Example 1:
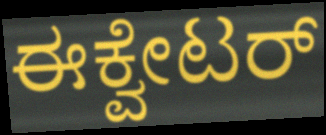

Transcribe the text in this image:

ಈಕ್ವೇಟರ್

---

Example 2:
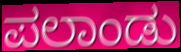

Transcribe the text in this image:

ಪಲಾಂಡು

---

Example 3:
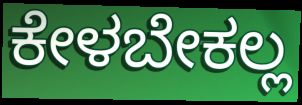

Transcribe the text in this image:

ಕೇಳಬೇಕಲ್ಲ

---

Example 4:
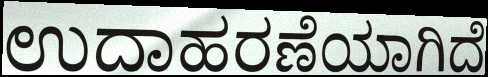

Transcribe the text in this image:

ಉದಾಹರಣೆಯಾಗಿದೆ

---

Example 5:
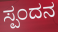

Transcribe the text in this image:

ಸ್ಪಂದನ